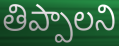
తిప్పాలని